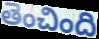
తెంచింది